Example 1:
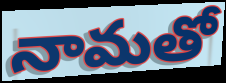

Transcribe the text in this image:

నామతో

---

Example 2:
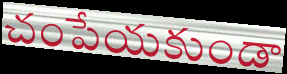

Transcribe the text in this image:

చంపేయకుండా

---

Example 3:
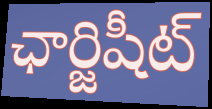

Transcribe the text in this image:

ఛార్జిషీట్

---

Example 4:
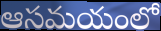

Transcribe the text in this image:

ఆసమయంలో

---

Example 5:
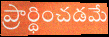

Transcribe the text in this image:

ప్రార్థించడమే